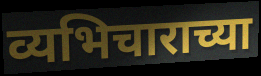
व्यभिचाराच्या